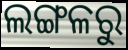
ଲଙ୍ଗଳରୁ